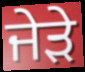
ਜੇੜੇ